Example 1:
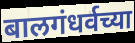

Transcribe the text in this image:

बालगंधर्वच्या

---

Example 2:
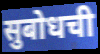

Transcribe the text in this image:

सुबोधची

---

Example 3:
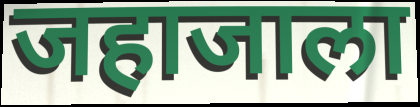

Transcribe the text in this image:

जहाजाला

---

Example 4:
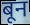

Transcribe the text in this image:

बून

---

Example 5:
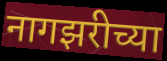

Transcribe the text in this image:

नागझरीच्या